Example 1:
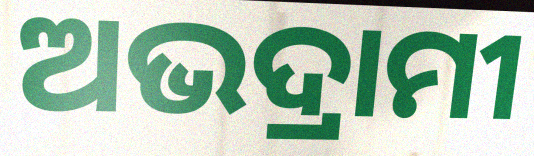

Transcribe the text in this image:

ଅଭଦ୍ରାମୀ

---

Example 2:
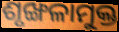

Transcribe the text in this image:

ଶୃଙ୍ଖଳାମୁକ୍ତ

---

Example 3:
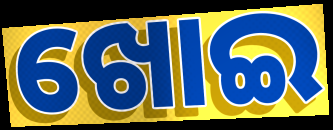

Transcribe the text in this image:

ଖୋଇ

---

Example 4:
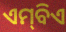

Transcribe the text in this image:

ଏମ୍‌ବିଏ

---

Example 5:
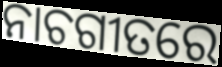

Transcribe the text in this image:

ନାଚଗୀତରେ